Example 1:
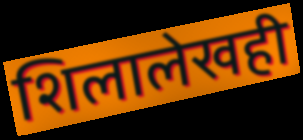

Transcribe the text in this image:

शिलालेखही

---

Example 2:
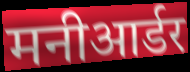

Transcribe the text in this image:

मनीआर्डर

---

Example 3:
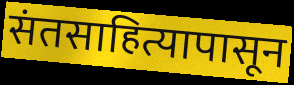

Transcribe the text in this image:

संतसाहित्यापासून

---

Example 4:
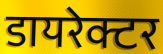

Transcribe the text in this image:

डायरेक्टर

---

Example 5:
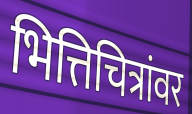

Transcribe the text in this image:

भित्तिचित्रांवर